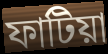
ফাটিয়া